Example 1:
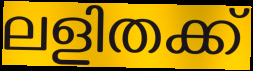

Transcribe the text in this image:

ലളിതക്ക്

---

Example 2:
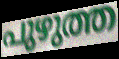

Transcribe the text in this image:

പുഴുത്ത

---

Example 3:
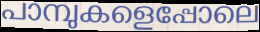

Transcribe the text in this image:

പാമ്പുകളെപ്പോലെ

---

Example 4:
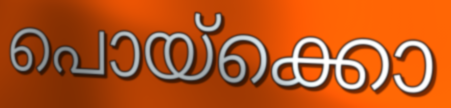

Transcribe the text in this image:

പൊയ്ക്കൊ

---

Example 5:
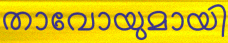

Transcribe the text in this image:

താവോയുമായി